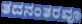
ತದನಂತರವೂ